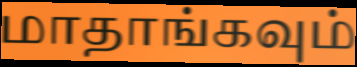
மாதாங்கவும்